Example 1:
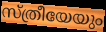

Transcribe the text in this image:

സ്ത്രീയേയും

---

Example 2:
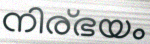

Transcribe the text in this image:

നിര്ഭയം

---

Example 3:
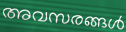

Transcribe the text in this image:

അവസരങ്ങൾ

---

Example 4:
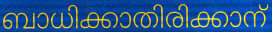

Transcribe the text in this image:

ബാധിക്കാതിരിക്കാന്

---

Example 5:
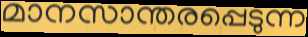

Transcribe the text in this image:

മാനസാന്തരപ്പെടുന്ന